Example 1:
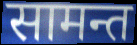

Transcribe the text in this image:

सामन्त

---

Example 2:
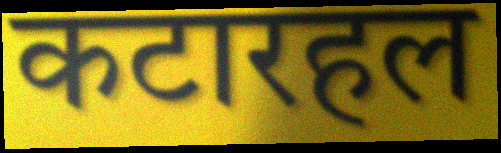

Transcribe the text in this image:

कटारहल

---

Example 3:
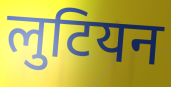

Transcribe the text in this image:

लुटियन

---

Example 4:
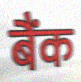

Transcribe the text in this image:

बैंक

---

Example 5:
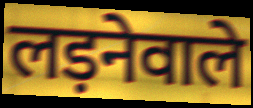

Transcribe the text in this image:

लड़नेवाले